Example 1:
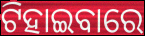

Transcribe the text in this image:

ଟିହାଇବାରେ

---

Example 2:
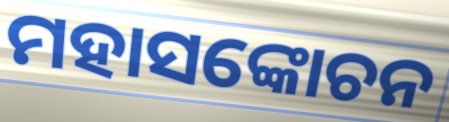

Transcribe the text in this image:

ମହାସଙ୍କୋଚନ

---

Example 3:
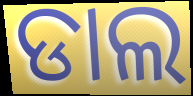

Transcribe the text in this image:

ଡାଲ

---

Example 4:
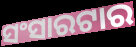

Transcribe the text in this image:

ସଂସାରଟାର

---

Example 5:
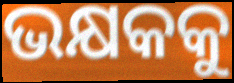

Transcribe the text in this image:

ଭକ୍ଷକକୁ